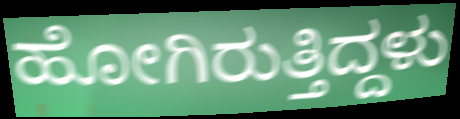
ಹೋಗಿರುತ್ತಿದ್ದಳು